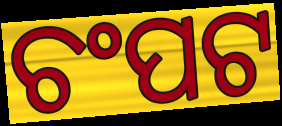
ଚଂପଟ